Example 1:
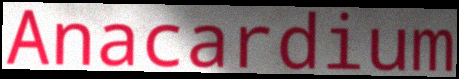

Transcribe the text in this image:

Anacardium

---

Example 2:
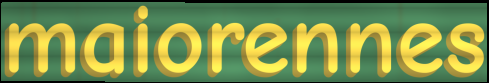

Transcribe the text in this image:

maiorennes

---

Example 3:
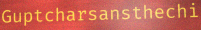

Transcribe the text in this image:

Guptcharsansthechi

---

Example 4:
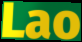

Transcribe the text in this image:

Lao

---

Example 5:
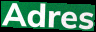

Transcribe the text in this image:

Adres